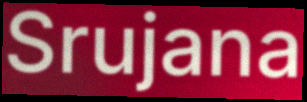
Srujana